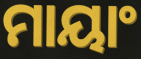
ମାୟାଂ